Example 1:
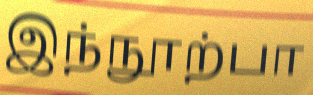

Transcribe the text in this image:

இந்நூற்பா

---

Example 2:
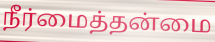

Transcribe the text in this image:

நீர்மைத்தன்மை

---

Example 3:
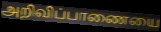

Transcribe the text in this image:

அறிவிப்பாணையை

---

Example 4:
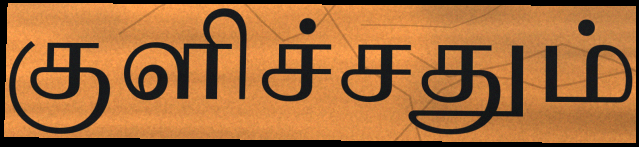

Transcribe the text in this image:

குளிச்சதும்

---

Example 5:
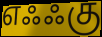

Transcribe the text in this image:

எஃஃகு